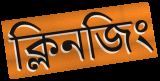
ক্লিনজিং